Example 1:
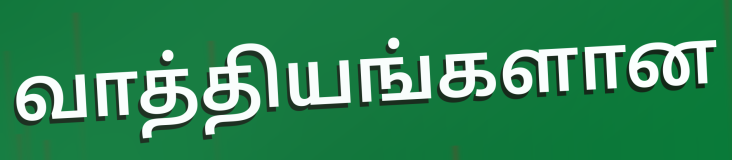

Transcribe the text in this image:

வாத்தியங்களான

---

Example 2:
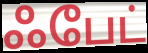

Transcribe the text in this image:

ஃபேட்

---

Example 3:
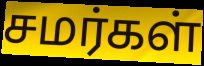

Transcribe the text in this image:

சமர்கள்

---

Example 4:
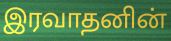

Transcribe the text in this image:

இரவாதனின்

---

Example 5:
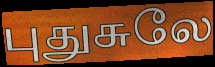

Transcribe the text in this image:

புதுசுலே